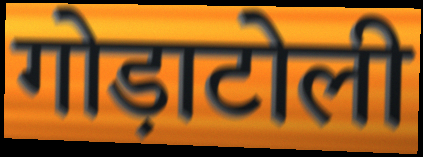
गोड़ाटोली